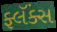
ફ્લૅંક્સ